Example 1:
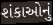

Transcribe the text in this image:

શંકાઓનું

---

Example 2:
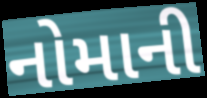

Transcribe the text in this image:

નોમાની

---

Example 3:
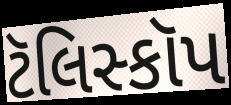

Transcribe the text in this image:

ટૅલિસ્કૉપ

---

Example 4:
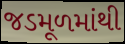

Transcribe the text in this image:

જડમૂળમાંથી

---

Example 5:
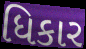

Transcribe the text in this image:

ધિકાર